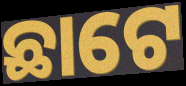
ଛାଟେ